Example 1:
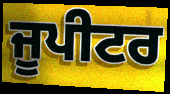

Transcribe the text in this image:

ਜੂਪੀਟਰ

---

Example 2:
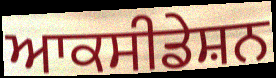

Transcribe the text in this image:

ਆਕਸੀਡੇਸ਼ਨ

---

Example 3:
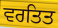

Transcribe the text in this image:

ਵਰਤਿਤ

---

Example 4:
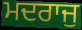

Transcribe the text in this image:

ਮਦਰਾਜੁ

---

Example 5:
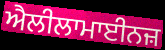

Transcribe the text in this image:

ਐਲੀਲਾਮਾਈਨਜ਼